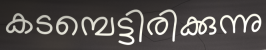
കടമ്പെട്ടിരിക്കുന്നു